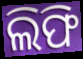
ଲିଫି